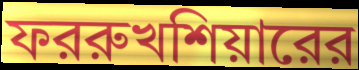
ফররুখশিয়ারের